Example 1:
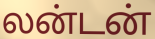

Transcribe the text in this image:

லன்டன்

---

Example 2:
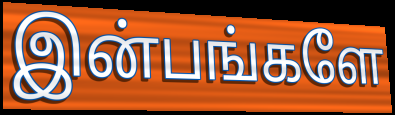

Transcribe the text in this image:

இன்பங்களே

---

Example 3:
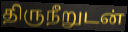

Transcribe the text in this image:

திருநீறுடன்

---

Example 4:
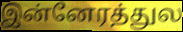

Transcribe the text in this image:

இன்னேரத்துல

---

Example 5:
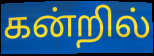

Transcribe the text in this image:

கன்றில்